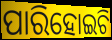
ପାରିହୋଇଚି